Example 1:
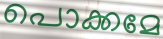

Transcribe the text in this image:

പൊക്കമേ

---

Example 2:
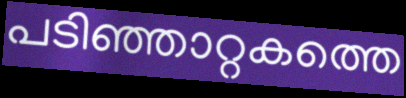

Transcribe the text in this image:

പടിഞ്ഞാറ്റകത്തെ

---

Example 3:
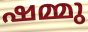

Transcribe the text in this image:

ഷമ്മു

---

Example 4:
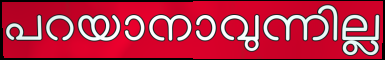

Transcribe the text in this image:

പറയാനാവുന്നില്ല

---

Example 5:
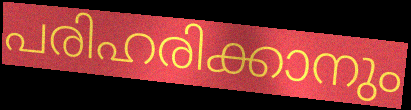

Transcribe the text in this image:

പരിഹരിക്കാനും